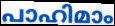
പാഹിമാം